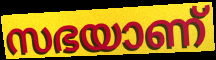
സഭയാണ്